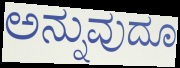
ಅನ್ನುವುದೂ